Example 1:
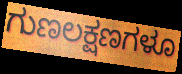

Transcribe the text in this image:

ಗುಣಲಕ್ಷಣಗಳೂ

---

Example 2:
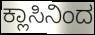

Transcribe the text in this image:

ಕ್ಲಾಸಿನಿಂದ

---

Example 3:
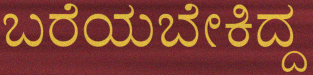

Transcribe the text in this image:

ಬರೆಯಬೇಕಿದ್ದ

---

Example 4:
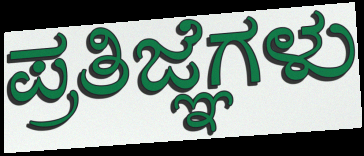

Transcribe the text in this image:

ಪ್ರತಿಜ್ಞೆಗಳು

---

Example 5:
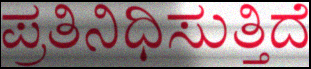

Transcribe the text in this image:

ಪ್ರತಿನಿಧಿಸುತ್ತಿದೆ